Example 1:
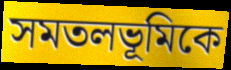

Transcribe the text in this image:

সমতলভূমিকে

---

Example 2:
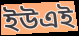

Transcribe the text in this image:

ইউএই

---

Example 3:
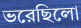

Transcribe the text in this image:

ভরেছিলো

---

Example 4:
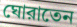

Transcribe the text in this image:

ঘোরাতেন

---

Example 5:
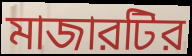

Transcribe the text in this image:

মাজারটির